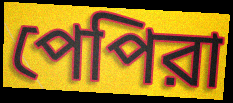
পেপিরা